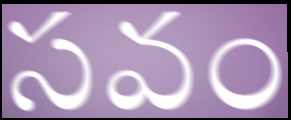
సవం